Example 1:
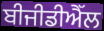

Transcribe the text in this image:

ਬੀਜੀਡੀਐੱਲ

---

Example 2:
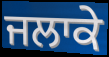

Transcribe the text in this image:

ਜਲਾਕੇ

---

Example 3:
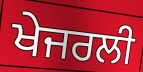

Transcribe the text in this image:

ਖੇਜਰਲੀ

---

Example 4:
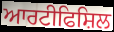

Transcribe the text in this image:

ਆਰਟੀਫਿਸ਼ਿਲ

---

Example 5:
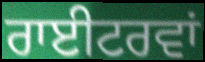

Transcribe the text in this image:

ਰਾਈਟਰਵਾਂ